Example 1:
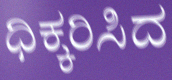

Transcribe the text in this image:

ಧಿಕ್ಕರಿಸಿದ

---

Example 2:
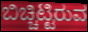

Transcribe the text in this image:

ಬಿಚ್ಚಿಟ್ಟಿರುವ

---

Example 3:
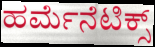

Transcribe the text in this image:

ಹರ್ಮೆನೆಟಿಕ್ಸ್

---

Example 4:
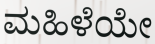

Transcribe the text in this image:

ಮಹಿಳೆಯೇ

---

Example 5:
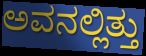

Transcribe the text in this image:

ಅವನಲ್ಲಿತ್ತು